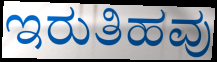
ಇರುತಿಹವು